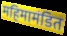
महिमामंडित